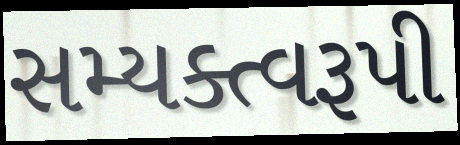
સમ્યક્ત્વરૂપી